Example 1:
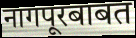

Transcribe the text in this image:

नागपूरबाबत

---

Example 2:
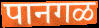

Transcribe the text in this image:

पानगळ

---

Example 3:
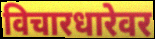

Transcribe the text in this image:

विचारधारेवर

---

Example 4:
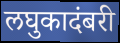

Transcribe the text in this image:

लघुकादंबरी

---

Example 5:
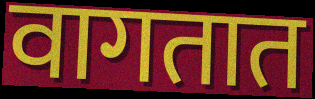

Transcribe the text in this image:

वागतात